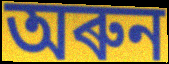
অৰুন